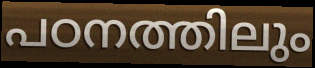
പഠനത്തിലും